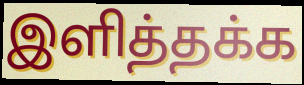
இளித்தக்க